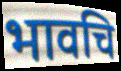
भावचि